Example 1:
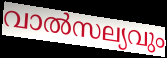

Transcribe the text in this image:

വാൽസല്യവും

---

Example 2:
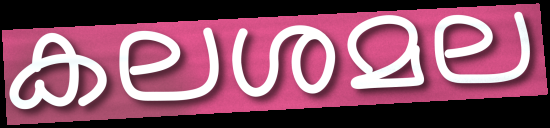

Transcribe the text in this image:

കലശമല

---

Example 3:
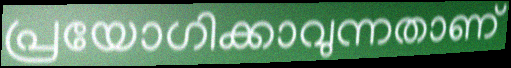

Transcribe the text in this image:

പ്രയോഗിക്കാവുന്നതാണ്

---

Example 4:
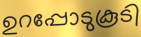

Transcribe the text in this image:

ഉറപ്പോടുകൂടി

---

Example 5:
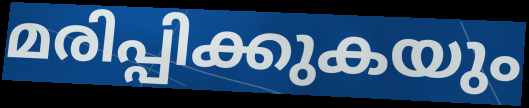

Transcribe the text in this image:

മരിപ്പിക്കുകയും